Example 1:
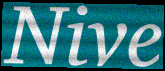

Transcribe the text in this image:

Nive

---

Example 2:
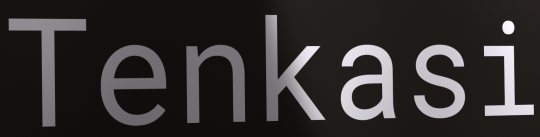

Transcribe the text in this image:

Tenkasi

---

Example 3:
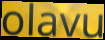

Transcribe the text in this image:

olavu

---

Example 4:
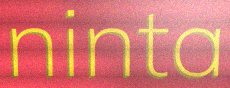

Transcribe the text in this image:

ninta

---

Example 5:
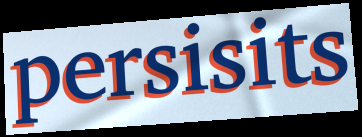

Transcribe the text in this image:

persisits